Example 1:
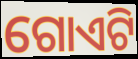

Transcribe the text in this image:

ଗୋଏଟି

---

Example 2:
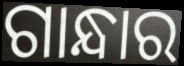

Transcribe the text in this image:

ଗାନ୍ଧାର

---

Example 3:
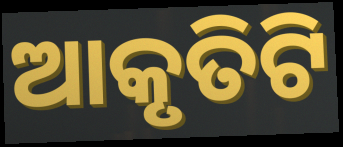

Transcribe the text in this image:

ଆକୃତିଟି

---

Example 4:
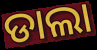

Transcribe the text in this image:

ଡାଲା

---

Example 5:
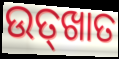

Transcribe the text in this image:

ଉତ୍‌ଖାତ